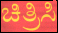
ಚಿತ್ರಿಸಿ